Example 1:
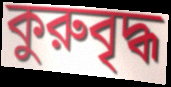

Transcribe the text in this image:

কুরুবৃদ্ধ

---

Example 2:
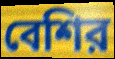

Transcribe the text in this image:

বেশির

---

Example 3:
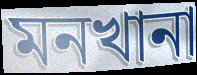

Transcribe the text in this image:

মনখানা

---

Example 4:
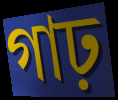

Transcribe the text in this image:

গাঢ়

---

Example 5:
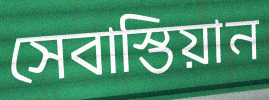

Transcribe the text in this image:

সেবাস্তিয়ান